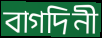
বাগদিনী